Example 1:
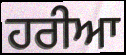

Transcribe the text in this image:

ਹਰੀਆ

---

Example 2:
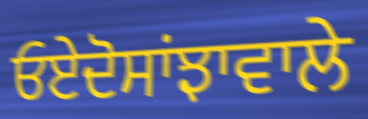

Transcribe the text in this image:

ਓਏਦੋਸਾਂਝਾਵਾਲੇ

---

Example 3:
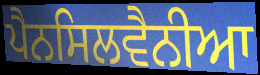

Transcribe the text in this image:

ਪੈਨਸਿਲਵੈਨੀਆ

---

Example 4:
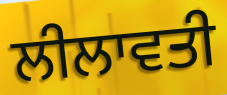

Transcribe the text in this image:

ਲੀਲਾਵਤੀ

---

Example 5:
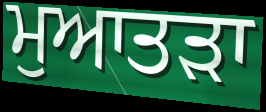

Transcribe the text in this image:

ਮੁਆਤੜਾ